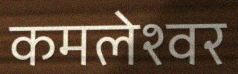
कमलेश्वर